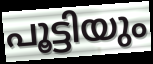
പൂട്ടിയും